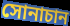
সোনাচান